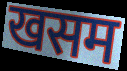
खसम